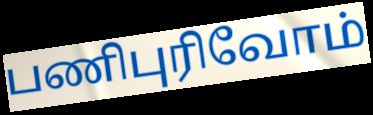
பணிபுரிவோம்